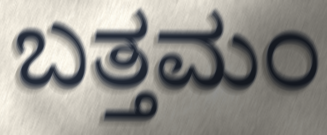
ಬತ್ತಮಂ